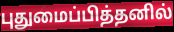
புதுமைப்பித்தனில்